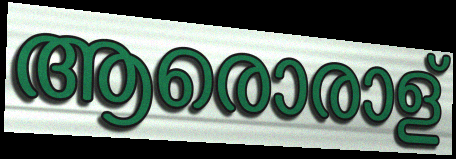
ആരൊരാള്